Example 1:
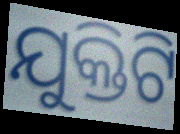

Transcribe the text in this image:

ଯୁକ୍ତିଟି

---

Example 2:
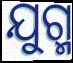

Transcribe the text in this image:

ଯୁଗ୍ମ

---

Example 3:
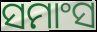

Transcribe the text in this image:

ସମାଂସ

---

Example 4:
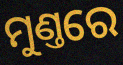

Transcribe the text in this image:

ମୁଣ୍ତରେ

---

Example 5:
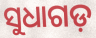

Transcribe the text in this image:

ସୁଧାଗଡ଼